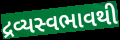
દ્રવ્યસ્વભાવથી